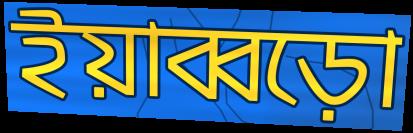
ইয়াব্বড়ো